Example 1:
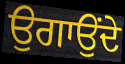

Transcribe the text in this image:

ਉਗਾਉਂਦੇ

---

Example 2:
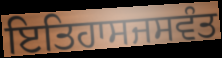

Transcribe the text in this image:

ਇਤਿਹਾਸਜਸਵੰਤ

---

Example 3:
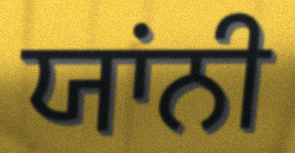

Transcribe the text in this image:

ਯਾਂਨੀ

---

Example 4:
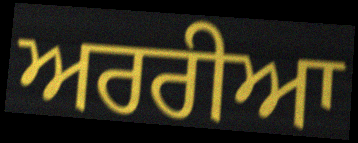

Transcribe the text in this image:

ਅਰਰੀਆ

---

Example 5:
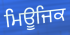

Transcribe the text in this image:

ਮਿਊਜਿਕ